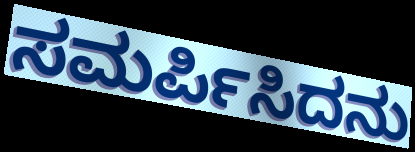
ಸಮರ್ಪಿಸಿದನು